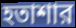
হতাশার